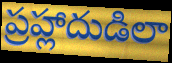
ప్రహ్లాదుడిలా